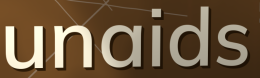
unaids